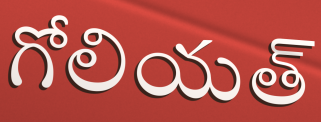
గోలియత్